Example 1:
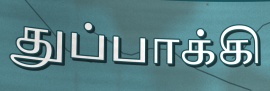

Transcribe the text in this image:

துப்பாக்கி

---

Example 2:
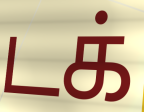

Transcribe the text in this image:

டக்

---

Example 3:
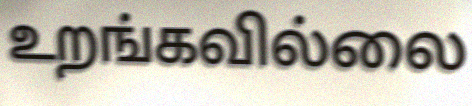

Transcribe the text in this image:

உறங்கவில்லை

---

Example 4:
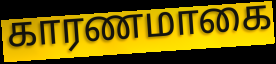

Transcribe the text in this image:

காரணமாகை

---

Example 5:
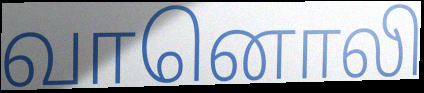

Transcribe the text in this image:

வானொலி